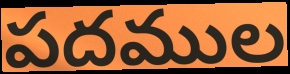
పదముల